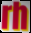
rh